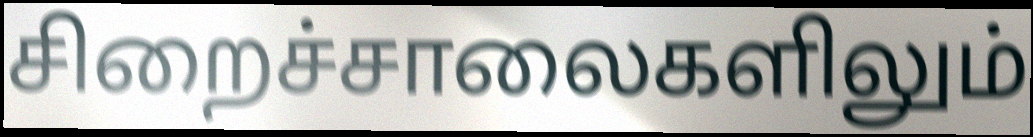
சிறைச்சாலைகளிலும்